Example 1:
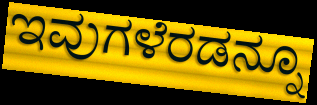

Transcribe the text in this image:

ಇವುಗಳೆರಡನ್ನೂ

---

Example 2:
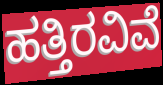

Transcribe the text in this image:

ಹತ್ತಿರವಿವೆ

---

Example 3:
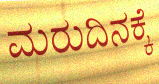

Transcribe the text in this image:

ಮರುದಿನಕ್ಕೆ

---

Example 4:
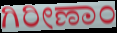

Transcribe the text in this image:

ಗಿರೀಣಾಂ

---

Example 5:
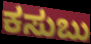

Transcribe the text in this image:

ಕಸುಬು